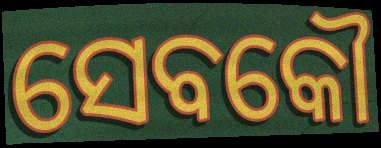
ସେବକୌ